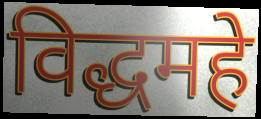
विद्धमहे